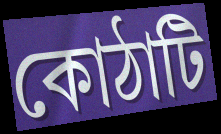
কোঠাটি